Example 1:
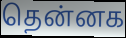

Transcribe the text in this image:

தென்னக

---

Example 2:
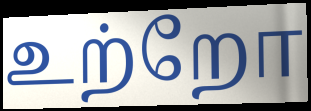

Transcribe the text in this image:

உற்றோ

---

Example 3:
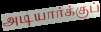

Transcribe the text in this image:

அடியார்க்குப்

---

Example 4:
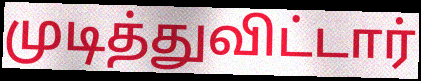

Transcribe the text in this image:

முடித்துவிட்டார்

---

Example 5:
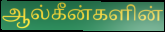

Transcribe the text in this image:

ஆல்கீன்களின்